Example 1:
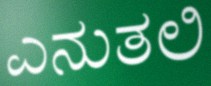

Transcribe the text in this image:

ಎನುತಲಿ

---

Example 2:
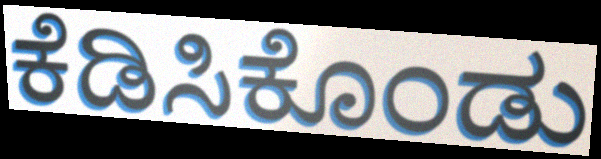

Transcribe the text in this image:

ಕೆಡಿಸಿಕೊಂಡು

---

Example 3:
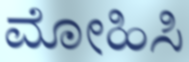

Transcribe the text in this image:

ಮೋಹಿಸಿ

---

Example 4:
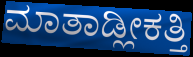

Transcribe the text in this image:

ಮಾತಾಡ್ಲೀಕತ್ತಿ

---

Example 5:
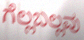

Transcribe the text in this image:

ಗೆಲ್ಲಬಲ್ಲವು